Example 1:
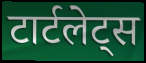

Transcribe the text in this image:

टार्टलेट्स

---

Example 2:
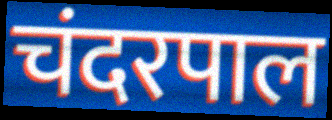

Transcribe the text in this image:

चंदरपाल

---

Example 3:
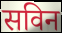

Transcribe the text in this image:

सविन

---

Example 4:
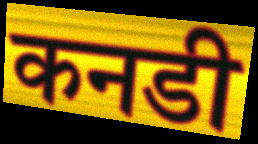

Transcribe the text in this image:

कनडी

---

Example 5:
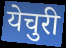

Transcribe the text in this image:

येचुरी